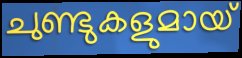
ചുണ്ടുകളുമായ്